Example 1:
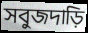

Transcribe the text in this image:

সবুজদাড়ি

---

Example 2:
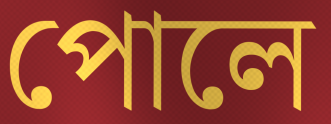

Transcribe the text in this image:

পোলে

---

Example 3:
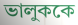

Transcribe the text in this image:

ভালুককে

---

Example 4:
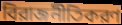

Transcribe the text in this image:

বিরাজনীতিকরণ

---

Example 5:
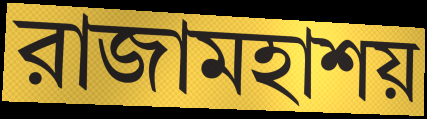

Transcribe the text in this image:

রাজামহাশয়